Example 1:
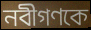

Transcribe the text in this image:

নবীগণকে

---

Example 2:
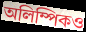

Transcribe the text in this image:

অলিম্পিকও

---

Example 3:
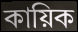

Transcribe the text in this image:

কায়িক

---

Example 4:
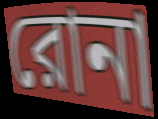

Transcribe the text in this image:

রোনা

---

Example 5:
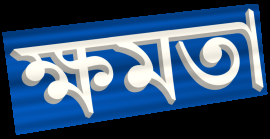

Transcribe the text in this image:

ক্ষমতা